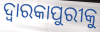
ଦ୍ୱାରକାପୁରୀକୁ